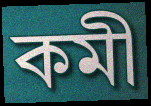
কমী